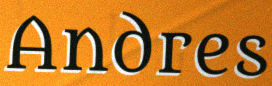
Andres